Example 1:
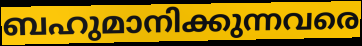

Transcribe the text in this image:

ബഹുമാനിക്കുന്നവരെ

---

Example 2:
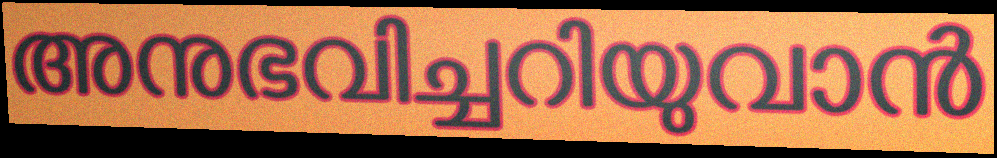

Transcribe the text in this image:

അനുഭവിച്ചറിയുവാൻ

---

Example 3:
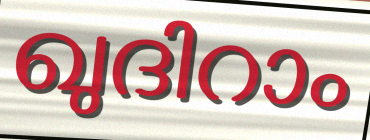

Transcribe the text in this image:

ഖുദിറാം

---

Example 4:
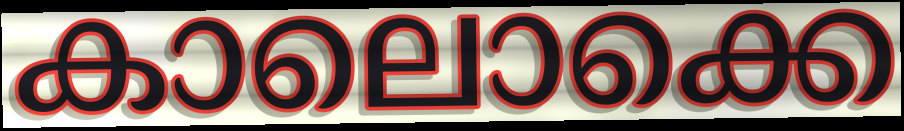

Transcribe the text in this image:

കാലൊക്കെ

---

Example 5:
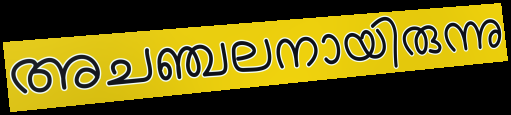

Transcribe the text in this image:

അചഞ്ചലനായിരുന്നു